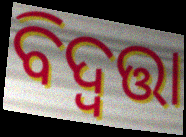
ବିଦ୍ୱତ୍ତା